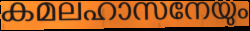
കമലഹാസനേയും